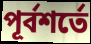
পূর্বশর্তে